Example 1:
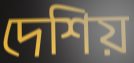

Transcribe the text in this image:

দেশিয়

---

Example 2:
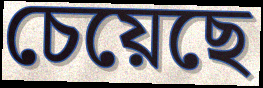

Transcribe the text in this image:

চেয়েছে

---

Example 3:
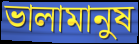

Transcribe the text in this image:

ভালামানুষ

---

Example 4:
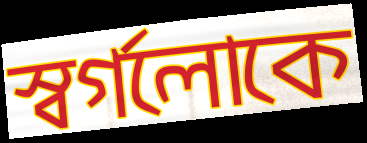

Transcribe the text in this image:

স্বর্গলোকে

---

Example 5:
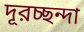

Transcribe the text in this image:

দূরচ্ছন্দা